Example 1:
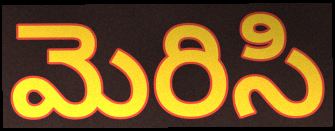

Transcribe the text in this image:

మెరిసి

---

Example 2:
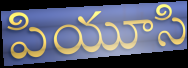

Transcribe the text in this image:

పియూసి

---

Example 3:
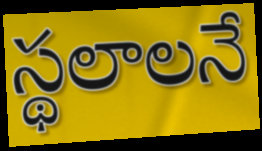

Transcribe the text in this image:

స్థలాలనే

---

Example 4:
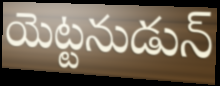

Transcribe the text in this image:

యెట్టనుడున్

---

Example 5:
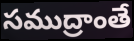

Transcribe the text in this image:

సముద్రాంతే